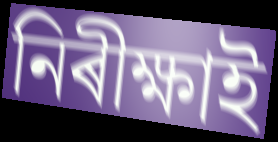
নিৰীক্ষাই